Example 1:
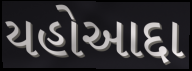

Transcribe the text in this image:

યહોઆદ્દા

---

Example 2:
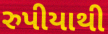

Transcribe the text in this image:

રુપીયાથી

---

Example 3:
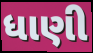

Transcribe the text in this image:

ધાણી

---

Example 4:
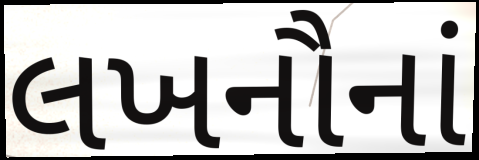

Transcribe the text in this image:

લખનૌનાં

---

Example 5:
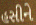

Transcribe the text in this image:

હસીને